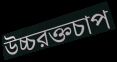
উচ্চরক্তচাপ